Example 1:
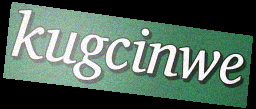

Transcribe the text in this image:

kugcinwe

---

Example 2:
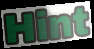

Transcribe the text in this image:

Hint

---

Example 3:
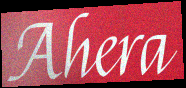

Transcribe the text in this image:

Ahera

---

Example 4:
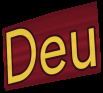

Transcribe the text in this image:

Deu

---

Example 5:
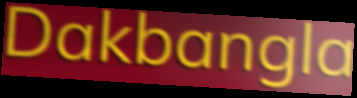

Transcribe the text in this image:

Dakbangla